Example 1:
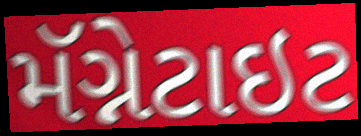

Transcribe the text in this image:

મૅગ્નેટાઇટ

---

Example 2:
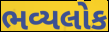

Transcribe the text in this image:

ભવ્યલોક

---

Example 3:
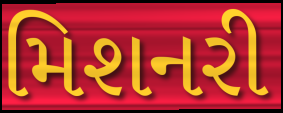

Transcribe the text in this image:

મિશનરી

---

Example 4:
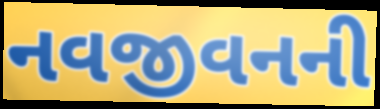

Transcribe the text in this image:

નવજીવનની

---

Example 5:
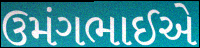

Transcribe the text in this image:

ઉમંગભાઈએ